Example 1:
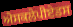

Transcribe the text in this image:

ਐਸਕਲੇਪੀਏਡਸ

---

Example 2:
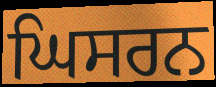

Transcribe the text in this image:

ਘਿਸਰਨ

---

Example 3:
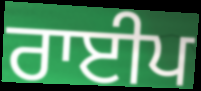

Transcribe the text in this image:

ਰਾਈਪ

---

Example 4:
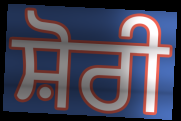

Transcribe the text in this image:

ਸ਼ੋਰੀ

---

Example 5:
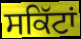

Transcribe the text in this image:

ਸਕਿੱਟਾਂ